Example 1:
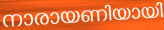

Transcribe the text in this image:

നാരായണിയായി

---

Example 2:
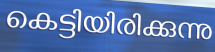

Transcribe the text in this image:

കെട്ടിയിരിക്കുന്നു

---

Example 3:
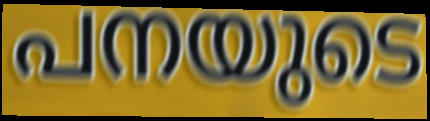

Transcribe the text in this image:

പനയുടെ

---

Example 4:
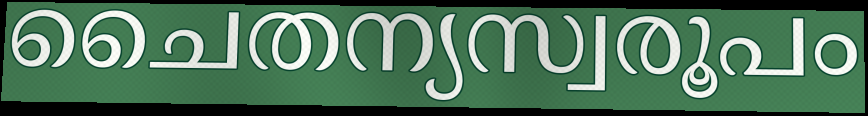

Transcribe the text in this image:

ചൈതന്യസ്വരൂപം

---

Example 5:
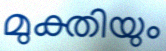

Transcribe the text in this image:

മുക്തിയും